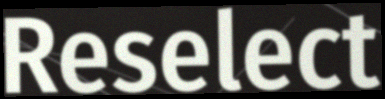
Reselect